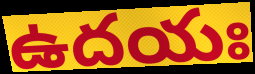
ఉదయః